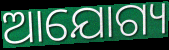
ଆଯୋଗ୍ୟ